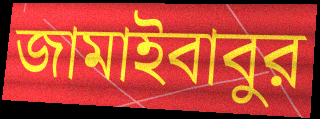
জামাইবাবুর